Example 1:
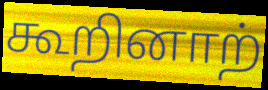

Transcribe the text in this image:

கூறினாற்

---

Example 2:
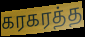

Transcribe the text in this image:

கரகரத்த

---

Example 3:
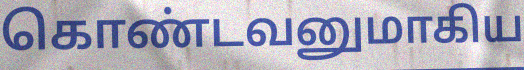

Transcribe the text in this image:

கொண்டவனுமாகிய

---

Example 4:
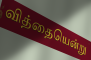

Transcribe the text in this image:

வித்தையென்று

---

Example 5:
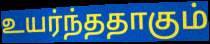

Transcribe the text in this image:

உயர்ந்ததாகும்